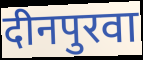
दीनपुरवा